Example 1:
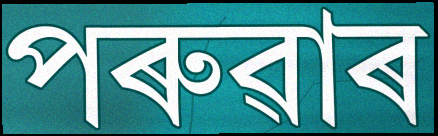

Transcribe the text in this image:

পৰুৱাৰ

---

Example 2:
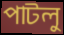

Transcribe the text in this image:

পাটলু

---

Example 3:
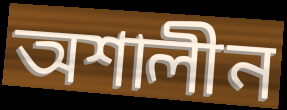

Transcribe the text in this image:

অশালীন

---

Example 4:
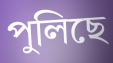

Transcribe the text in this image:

পুলিছে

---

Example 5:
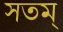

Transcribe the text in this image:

সতম্